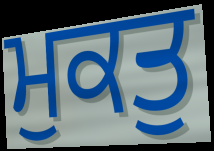
ਮੁਕਤੁ